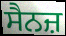
ਸੈਨਜ਼